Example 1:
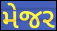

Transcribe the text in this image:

મેજર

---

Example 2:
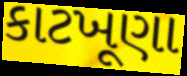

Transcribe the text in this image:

કાટખૂણા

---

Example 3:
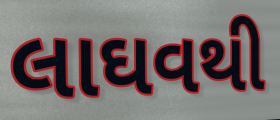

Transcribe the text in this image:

લાઘવથી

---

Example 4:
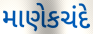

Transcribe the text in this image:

માણેકચંદે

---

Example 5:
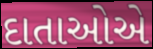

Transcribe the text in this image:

દાતાઓએ